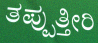
ತಪ್ಪುತ್ತೀರಿ